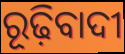
ରୂଢ଼ିବାଦୀ